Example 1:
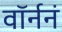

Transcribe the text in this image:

वॉर्ननं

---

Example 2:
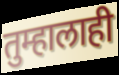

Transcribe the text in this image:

तुम्हालाही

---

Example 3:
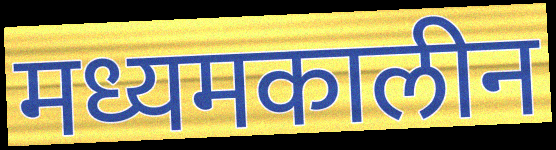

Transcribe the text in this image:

मध्यमकालीन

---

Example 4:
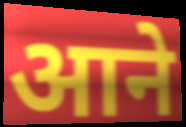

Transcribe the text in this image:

आने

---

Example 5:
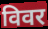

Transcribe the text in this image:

विवर